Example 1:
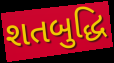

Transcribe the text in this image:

શતબુદ્ધિ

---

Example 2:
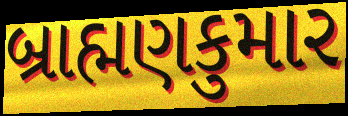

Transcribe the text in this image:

બ્રાહ્મણકુમાર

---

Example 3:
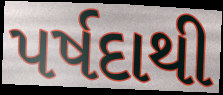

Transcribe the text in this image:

પર્ષદાથી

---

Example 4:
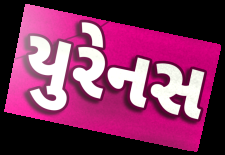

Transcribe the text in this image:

યુરેનસ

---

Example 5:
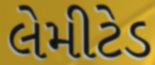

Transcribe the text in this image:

લેમીટેડ